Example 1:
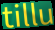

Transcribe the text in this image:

tillu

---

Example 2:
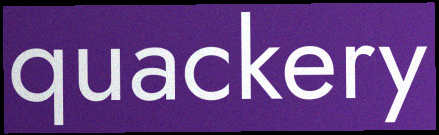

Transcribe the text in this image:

quackery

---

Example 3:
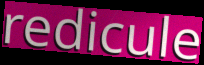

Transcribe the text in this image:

redicule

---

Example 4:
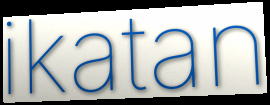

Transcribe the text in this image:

ikatan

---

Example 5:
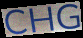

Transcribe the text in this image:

CHG